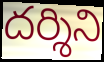
దర్శిని